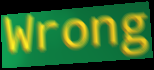
Wrong